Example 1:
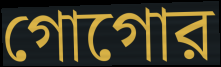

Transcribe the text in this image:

গোগোর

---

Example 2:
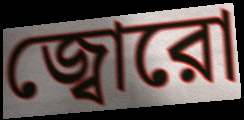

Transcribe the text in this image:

জ্বোরো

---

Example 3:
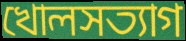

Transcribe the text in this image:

খোলসত্যাগ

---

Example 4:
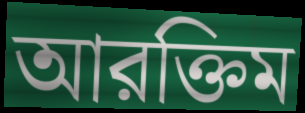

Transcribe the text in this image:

আরক্তিম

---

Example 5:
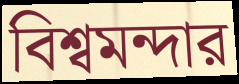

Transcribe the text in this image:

বিশ্বমন্দার